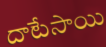
దాటేసాయి